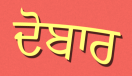
ਦੋਬਾਰ